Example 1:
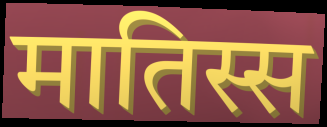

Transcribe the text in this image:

मातिस्स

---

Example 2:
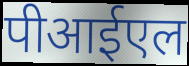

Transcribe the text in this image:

पीआईएल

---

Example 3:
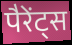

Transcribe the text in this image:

पैरेंट्स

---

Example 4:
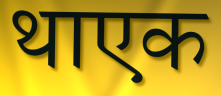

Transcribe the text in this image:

थाएक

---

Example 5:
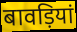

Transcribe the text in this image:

बावड़ियां